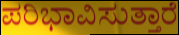
ಪರಿಭಾವಿಸುತ್ತಾರೆ